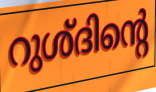
റുശ്ദിന്റെ